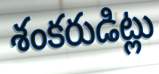
శంకరుడిట్లు